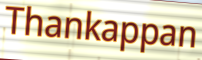
Thankappan